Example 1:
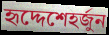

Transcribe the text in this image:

হৃদ্দেশেহর্জুন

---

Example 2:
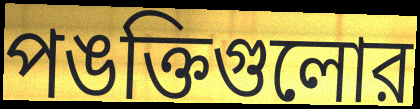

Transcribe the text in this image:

পঙক্তিগুলোর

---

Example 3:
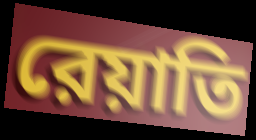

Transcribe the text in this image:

রেয়াতি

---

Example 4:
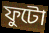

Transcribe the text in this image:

ফুটো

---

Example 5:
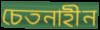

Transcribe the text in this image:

চেতনাহীন